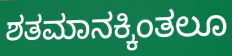
ಶತಮಾನಕ್ಕಿಂತಲೂ